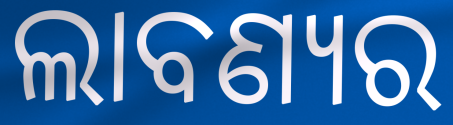
ଲାବଣ୍ୟର